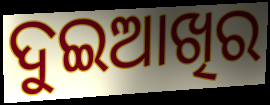
ଦୁଇଆଖିର